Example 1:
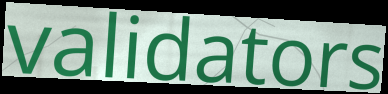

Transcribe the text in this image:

validators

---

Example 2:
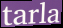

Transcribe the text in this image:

tarla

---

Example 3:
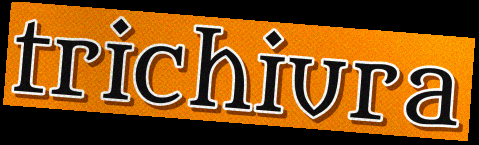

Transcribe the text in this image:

trichiura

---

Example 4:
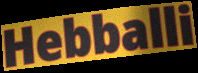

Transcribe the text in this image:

Hebballi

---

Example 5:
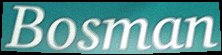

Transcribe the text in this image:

Bosman